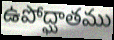
ఉపోద్ఘాతము